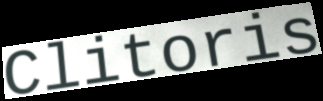
Clitoris